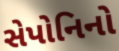
સેપોનિનો